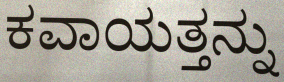
ಕವಾಯತ್ತನ್ನು